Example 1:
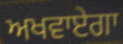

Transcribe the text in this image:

ਅਖਵਾਏਗਾ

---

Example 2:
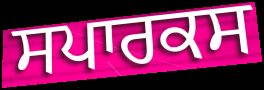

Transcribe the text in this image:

ਸਪਾਰਕਸ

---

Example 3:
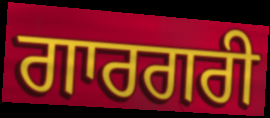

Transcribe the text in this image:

ਗਾਰਗਰੀ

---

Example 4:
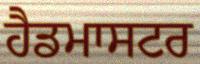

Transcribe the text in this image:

ਹੈਡਮਾਸਟਰ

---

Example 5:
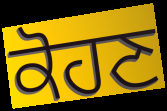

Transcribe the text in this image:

ਕੋਹਣ